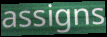
assigns